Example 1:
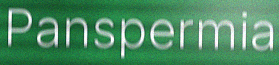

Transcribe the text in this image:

Panspermia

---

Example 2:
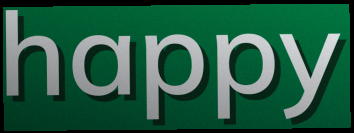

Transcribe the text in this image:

happy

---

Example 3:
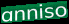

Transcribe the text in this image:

anniso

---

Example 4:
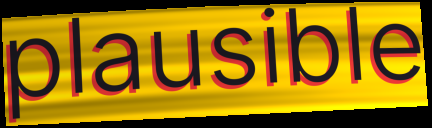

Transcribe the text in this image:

plausible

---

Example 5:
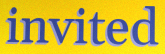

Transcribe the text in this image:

invited